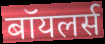
बॉयलर्स